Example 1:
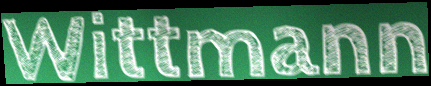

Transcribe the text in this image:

Wittmann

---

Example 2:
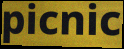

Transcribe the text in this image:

picnic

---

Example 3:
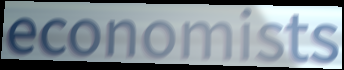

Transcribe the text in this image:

economists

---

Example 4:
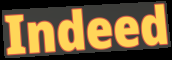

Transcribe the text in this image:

Indeed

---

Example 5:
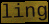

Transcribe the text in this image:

ling